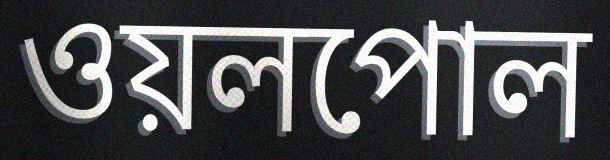
ওয়লপোল